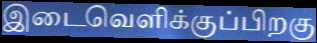
இடைவெளிக்குப்பிறகு